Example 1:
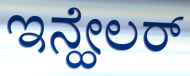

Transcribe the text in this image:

ಇನ್ಹೇಲರ್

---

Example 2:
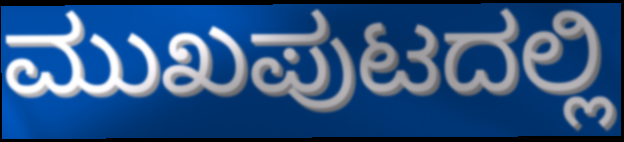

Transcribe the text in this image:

ಮುಖಪುಟದಲ್ಲಿ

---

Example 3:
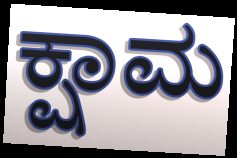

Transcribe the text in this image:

ಕ್ಷಾಮ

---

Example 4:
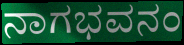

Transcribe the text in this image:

ನಾಗಭವನಂ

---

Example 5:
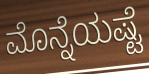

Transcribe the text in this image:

ಮೊನ್ನೆಯಷ್ಟೆ